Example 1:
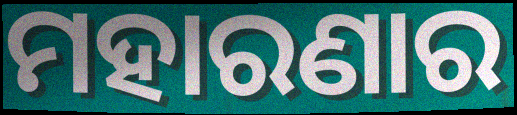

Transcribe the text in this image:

ମହାରଣାର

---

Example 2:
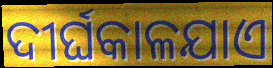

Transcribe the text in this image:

ଦୀର୍ଘକାଳଯାଏ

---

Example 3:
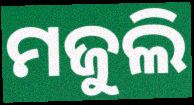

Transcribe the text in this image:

ମଜୁଲି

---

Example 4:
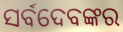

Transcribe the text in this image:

ସର୍ବଦେବଙ୍କର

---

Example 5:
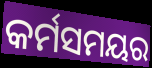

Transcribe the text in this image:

କର୍ମସମୟର